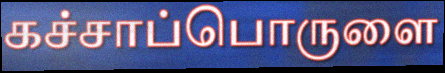
கச்சாப்பொருளை